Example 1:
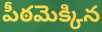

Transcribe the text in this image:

పీఠమెక్కిన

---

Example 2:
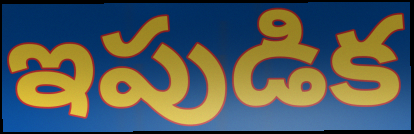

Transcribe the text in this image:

ఇపుడిక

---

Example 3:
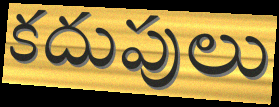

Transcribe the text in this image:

కదుపులు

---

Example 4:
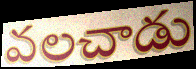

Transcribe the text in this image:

వలచాడు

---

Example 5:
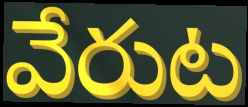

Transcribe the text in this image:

వేరుట